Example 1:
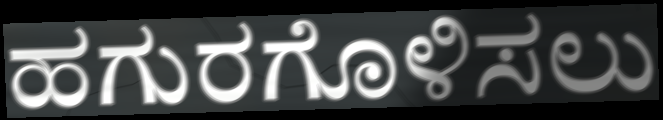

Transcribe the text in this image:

ಹಗುರಗೊಳಿಸಲು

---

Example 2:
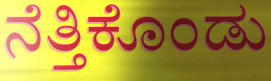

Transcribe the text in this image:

ನೆತ್ತಿಕೊಂಡು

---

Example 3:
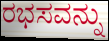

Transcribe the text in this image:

ರಭಸವನ್ನು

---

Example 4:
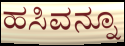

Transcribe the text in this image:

ಹಸಿವನ್ನೂ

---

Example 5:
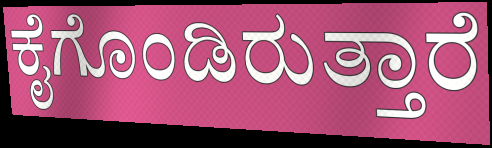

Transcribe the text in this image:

ಕೈಗೊಂಡಿರುತ್ತಾರೆ